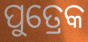
ପୁତ୍ରେକ